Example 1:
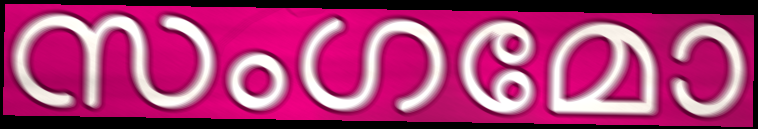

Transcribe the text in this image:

സംഗമോ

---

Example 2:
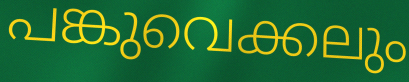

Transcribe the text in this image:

പങ്കുവെക്കലും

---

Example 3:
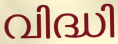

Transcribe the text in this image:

വിദ്ധി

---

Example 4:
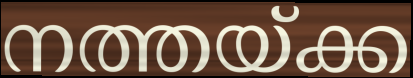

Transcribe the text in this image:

നത്തയ്ക്ക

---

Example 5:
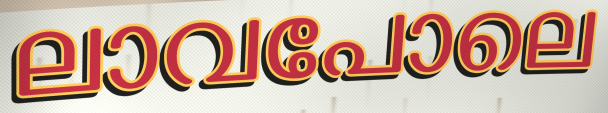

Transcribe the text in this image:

ലാവപോലെ